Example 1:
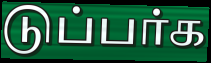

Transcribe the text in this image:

டுப்பர்க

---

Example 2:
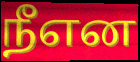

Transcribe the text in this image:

நீஎன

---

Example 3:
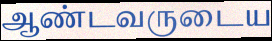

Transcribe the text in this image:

ஆண்டவருடைய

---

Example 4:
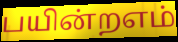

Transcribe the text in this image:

பயின்றஎம்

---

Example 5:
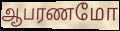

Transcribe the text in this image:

ஆபரணமோ